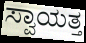
ಸ್ವಾಯತ್ತ